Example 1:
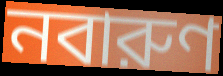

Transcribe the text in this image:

নবারুণ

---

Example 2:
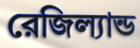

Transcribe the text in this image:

রেজিল্যান্ড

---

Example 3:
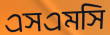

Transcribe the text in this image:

এসএমসি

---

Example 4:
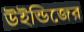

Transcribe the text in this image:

উইন্ডিজের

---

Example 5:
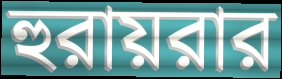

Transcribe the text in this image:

হুরায়রার